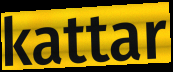
kattar